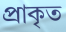
প্ৰাকৃত